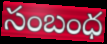
సంబంధ